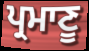
ਪ੍ਰਮਾਣੂ